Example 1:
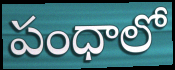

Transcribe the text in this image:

పంధాలో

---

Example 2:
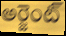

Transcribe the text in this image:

అర్జెంట్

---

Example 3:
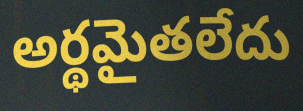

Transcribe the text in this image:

అర్థమైతలేదు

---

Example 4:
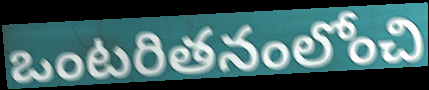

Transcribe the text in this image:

ఒంటరితనంలోంచి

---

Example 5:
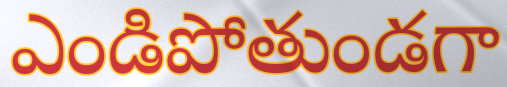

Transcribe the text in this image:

ఎండిపోతుండగా